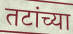
तटांच्या